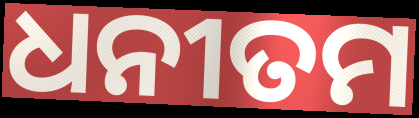
ଧନୀତମ